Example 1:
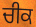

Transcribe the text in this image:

ਚੀਕ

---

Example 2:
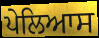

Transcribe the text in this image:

ਪੇਲਿਆਸ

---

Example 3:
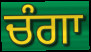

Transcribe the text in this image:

ਚੰਗਾ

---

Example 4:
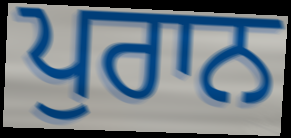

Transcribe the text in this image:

ਪੁਰਾਨ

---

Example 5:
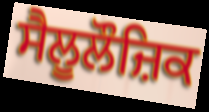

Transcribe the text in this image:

ਸੈਲੂਲੌਜ਼ਿਕ